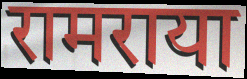
रामराया